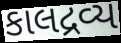
કાલદ્રવ્ય